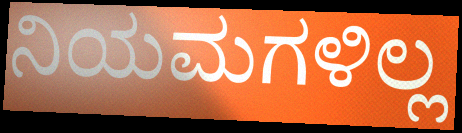
ನಿಯಮಗಳಿಲ್ಲ